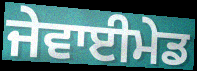
ਜੇਵਾਈਮੇਡ